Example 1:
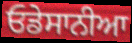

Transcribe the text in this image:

ਓਡੇਸਾਨੀਆ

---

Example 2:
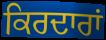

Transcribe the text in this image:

ਕਿਰਦਾਰਾਂ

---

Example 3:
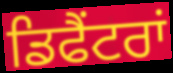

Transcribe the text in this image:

ਡਿਫੈਂਟਰਾਂ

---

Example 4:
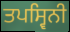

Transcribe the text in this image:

ਤਪਸ੍ਵਿਨੀ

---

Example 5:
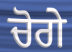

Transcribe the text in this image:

ਚੋਗੇ